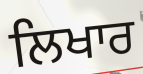
ਲਿਖਾਰ